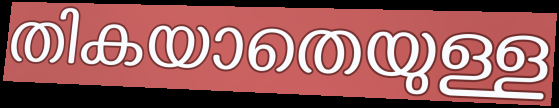
തികയാതെയുള്ള